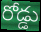
రోడ్డు